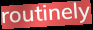
routinely